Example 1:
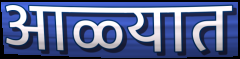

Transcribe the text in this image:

आळ्यात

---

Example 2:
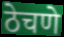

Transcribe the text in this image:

ठेचणे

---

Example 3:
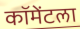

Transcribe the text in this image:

कॉमेंटला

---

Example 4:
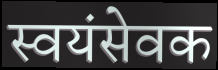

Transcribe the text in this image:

स्वयंसेवक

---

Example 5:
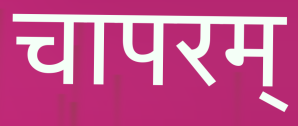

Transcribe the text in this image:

चापरम्